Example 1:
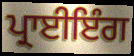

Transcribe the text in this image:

ਪ੍ਰਾਈਇੰਗ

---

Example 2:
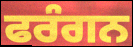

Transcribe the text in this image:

ਫਰੰਗਨ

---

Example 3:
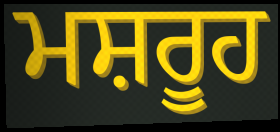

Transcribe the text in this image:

ਮਸ਼ਰੂਹ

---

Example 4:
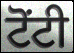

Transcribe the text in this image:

ਟੋਂਟੀ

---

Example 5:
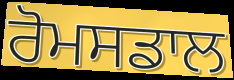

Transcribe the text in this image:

ਰੋਮਸਡਾਲ